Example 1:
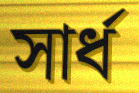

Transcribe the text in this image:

সার্ধ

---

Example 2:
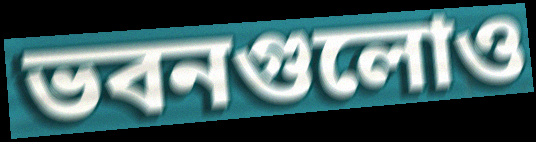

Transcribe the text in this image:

ভবনগুলোও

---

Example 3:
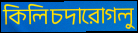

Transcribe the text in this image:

কিলিচদারোগলু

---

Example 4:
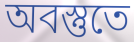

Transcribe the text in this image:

অবস্তুতে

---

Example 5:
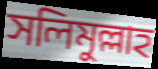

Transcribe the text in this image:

সলিমুল্লাহ